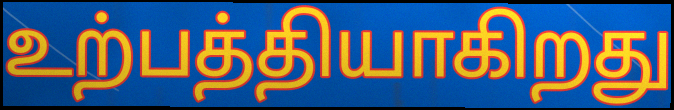
உற்பத்தியாகிறது